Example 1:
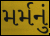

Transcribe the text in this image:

મર્મનું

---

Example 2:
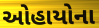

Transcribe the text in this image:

ઓહાયોના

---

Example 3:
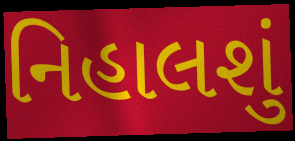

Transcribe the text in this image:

નિહાલશું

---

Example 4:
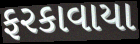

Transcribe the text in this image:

ફરકાવાયા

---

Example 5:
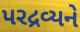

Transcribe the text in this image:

પરદ્રવ્યને